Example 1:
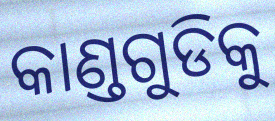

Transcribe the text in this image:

କାଣ୍ଡଗୁଡିକୁ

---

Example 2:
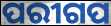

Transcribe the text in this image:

ପରୀଗପ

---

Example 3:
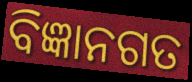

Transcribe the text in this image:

ବିଜ୍ଞାନଗତ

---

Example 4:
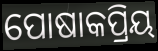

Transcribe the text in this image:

ପୋଷାକପ୍ରିୟ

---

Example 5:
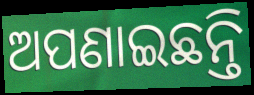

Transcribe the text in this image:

ଅପଣାଇଛନ୍ତି